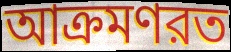
আক্রমণরত